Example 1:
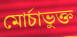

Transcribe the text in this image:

মোর্চাভুক্ত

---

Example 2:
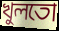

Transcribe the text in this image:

খুলতো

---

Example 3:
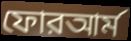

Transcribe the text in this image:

ফোরআর্ম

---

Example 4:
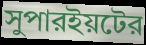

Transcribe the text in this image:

সুপারইয়টের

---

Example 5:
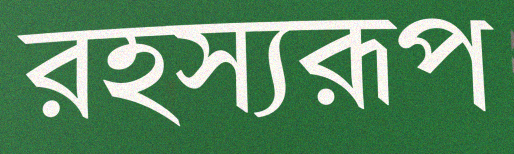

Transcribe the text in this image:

রহস্যরূপ